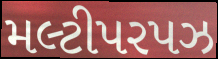
મલ્ટીપરપઝ